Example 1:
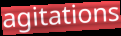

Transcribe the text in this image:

agitations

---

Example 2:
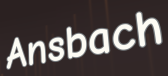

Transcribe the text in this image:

Ansbach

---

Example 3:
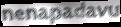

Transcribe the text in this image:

nenapadavu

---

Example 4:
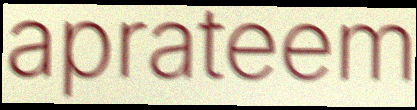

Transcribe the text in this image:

aprateem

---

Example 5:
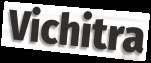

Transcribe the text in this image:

Vichitra